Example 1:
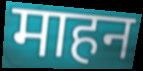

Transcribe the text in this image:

माहन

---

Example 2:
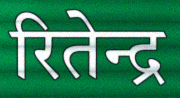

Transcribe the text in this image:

रितेन्द्र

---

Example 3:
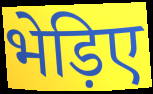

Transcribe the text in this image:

भेड़िए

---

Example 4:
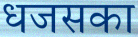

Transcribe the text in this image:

धजसका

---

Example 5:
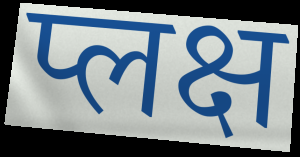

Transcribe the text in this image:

प्लक्ष